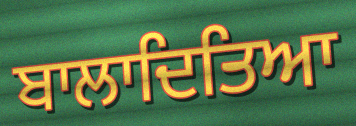
ਬਾਲਾਦਿਤਿਆ